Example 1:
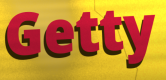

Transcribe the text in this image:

Getty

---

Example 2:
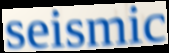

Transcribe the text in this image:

seismic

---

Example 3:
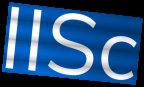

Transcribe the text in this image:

IISc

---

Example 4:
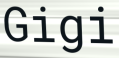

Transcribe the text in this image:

Gigi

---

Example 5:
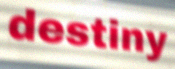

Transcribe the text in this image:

destiny